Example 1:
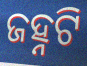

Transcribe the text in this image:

ଜହ୍ନଟି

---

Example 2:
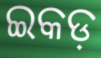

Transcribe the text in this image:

ଇକଡ଼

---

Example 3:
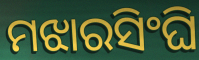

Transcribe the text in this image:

ମଝାରସିଂଘି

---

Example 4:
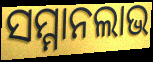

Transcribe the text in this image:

ସମ୍ମାନଲାଭ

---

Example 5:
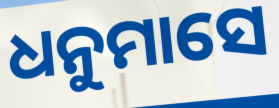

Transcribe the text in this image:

ଧନୁମାସେ